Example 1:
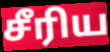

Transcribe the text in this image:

சீரிய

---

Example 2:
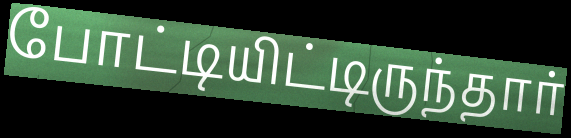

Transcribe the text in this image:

போட்டியிட்டிருந்தார்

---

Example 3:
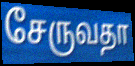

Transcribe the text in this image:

சேருவதா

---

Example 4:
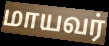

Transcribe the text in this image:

மாயவர்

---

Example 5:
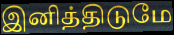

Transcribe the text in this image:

இனித்திடுமே